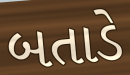
બતાડે